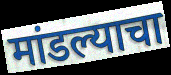
मांडल्याचा